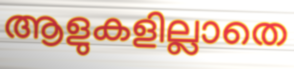
ആളുകളില്ലാതെ